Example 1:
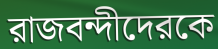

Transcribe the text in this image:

রাজবন্দীদেরকে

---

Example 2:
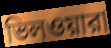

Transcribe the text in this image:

ভিলওয়ারা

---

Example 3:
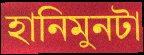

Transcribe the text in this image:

হানিমুনটা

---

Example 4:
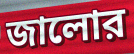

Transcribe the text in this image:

জালোর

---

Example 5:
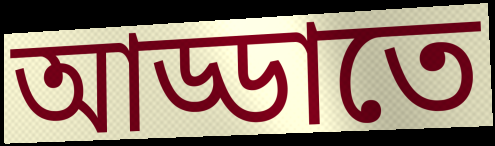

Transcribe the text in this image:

আড্ডাতে